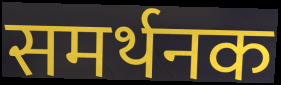
समर्थनक